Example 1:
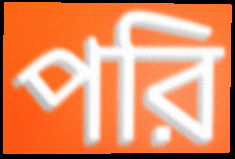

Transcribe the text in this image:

পরি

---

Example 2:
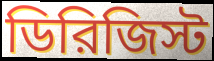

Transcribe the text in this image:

ডিরিজিস্ট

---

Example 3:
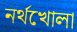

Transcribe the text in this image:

নর্থখোলা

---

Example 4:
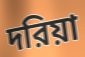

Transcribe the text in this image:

দরিয়া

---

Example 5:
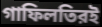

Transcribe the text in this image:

গাফিলতিরই